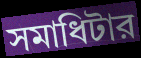
সমাধিটার